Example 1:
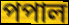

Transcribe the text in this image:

পপাল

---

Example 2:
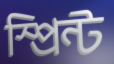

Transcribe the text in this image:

স্প্রিন্ট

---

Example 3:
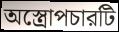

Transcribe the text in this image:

অস্ত্রোপচারটি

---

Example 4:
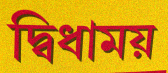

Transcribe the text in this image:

দ্বিধাময়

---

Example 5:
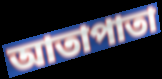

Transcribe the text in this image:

আতাপাতা